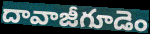
దావాజీగూడెం